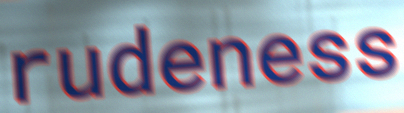
rudeness